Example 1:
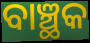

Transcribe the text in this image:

ବାଞ୍ଛକ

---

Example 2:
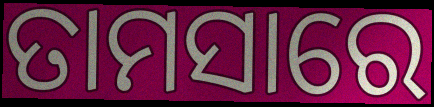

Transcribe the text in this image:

ତାମସାରେ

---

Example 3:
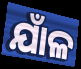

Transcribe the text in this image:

ଯାଁଳ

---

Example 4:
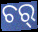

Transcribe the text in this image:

ଚର୍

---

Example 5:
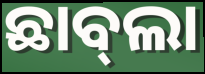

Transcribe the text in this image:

ଛାବ୍‍ଲା